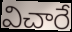
విచారే